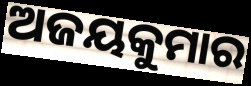
ଅଜୟକୁମାର